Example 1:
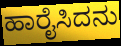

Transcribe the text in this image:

ಹಾರೈಸಿದನು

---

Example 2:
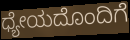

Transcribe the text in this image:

ಧ್ಯೇಯದೊಂದಿಗೆ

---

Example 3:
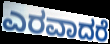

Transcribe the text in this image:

ಎರವಾದರೆ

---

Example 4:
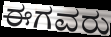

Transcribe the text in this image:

ಈಗವರು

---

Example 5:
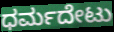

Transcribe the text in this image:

ಧರ್ಮದೇಟು